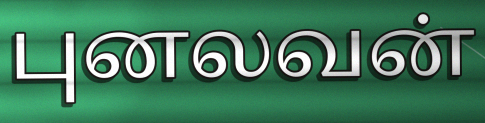
புனலவன்